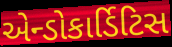
એન્ડોકાર્ડિટિસ